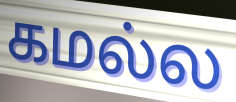
கமல்ல